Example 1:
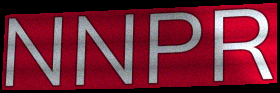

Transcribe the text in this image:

NNPR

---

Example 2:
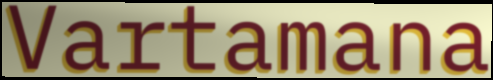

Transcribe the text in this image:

Vartamana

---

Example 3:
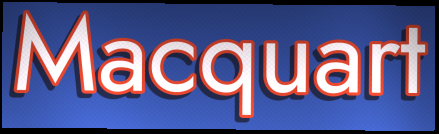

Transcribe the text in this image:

Macquart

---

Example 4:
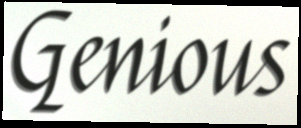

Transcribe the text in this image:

Genious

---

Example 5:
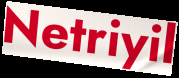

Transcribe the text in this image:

Netriyil